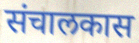
संचालकास